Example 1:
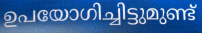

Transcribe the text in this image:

ഉപയോഗിച്ചിട്ടുമുണ്ട്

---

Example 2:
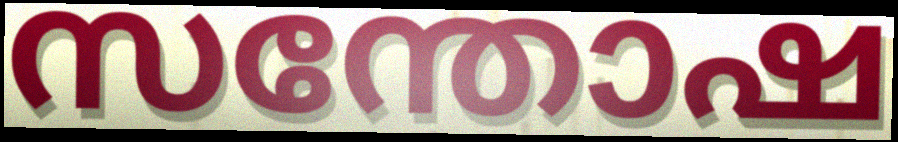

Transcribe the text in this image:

സന്തോഷ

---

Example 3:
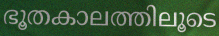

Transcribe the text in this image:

ഭൂതകാലത്തിലൂടെ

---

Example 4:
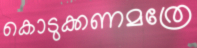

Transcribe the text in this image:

കൊടുക്കണമത്രേ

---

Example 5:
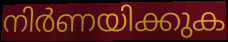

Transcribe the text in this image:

നിർണയിക്കുക